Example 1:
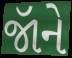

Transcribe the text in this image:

જૉને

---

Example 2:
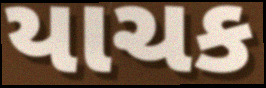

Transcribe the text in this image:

યાચક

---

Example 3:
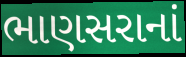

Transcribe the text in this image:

ભાણસરાનાં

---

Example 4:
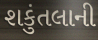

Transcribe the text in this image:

શકુંતલાની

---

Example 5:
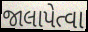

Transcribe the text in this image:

જાલાપેત્વા